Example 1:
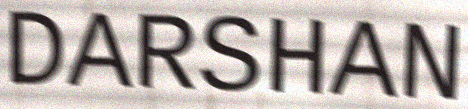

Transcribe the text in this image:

DARSHAN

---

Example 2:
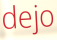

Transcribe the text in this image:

dejo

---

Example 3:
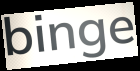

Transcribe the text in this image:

binge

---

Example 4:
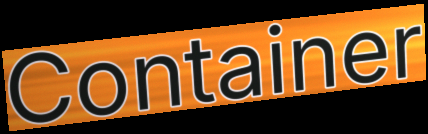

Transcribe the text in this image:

Container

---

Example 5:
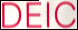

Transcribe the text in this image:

DEIC